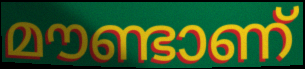
മൗണ്ടാണ്